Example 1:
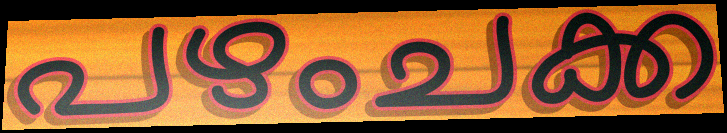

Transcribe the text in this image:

പഴംചക്ക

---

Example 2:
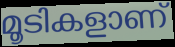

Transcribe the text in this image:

മൂടികളാണ്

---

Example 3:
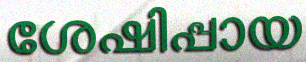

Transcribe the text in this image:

ശേഷിപ്പായ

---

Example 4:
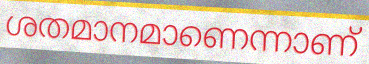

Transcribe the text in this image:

ശതമാനമാണെന്നാണ്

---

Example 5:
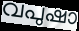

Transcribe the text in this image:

വപുഷാ